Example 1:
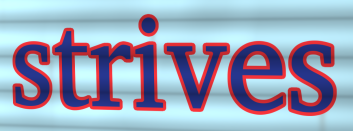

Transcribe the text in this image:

strives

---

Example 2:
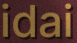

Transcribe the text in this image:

idai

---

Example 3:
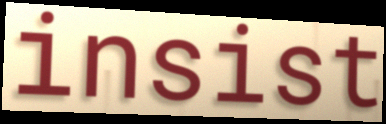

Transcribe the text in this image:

insist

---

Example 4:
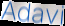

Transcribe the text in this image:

Adavi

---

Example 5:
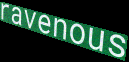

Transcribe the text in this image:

ravenous